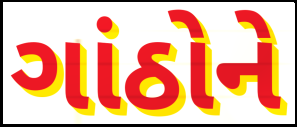
ગાંઠોને